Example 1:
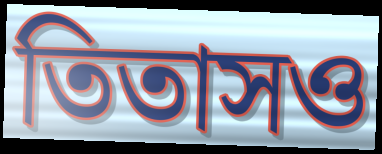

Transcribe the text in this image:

তিতাসও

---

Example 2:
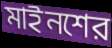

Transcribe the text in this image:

মাইনশের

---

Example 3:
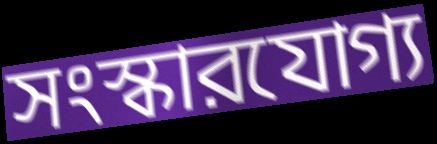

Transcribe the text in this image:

সংস্কারযোগ্য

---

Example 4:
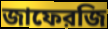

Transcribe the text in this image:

জাফেরজি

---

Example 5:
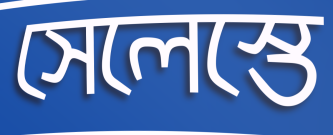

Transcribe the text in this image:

সেলেস্তে